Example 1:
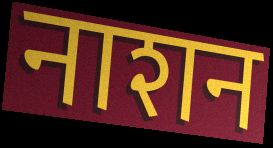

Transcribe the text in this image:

नाशन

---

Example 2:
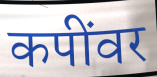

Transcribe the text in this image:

कपींवर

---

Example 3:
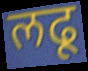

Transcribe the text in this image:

लढू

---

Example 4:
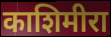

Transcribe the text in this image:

काशिमीरा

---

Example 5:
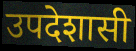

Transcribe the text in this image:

उपदेशासी